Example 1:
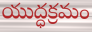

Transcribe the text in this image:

యుద్ధక్రమం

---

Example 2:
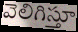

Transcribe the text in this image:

వెలిగిస్తూ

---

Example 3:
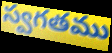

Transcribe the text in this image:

స్వగతము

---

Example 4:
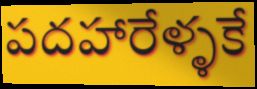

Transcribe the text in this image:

పదహారేళ్ళకే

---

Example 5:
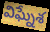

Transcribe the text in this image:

విఘ్నేశ